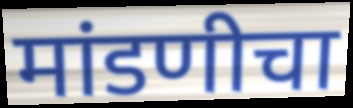
मांडणीचा